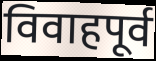
विवाहपूर्व